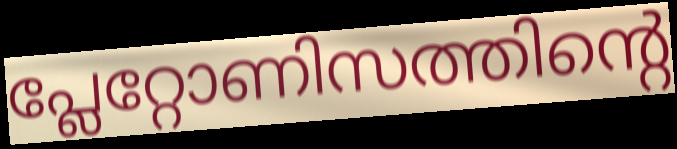
പ്ലേറ്റോണിസത്തിന്റെ